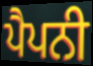
ਪੈਪਨੀ